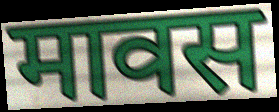
मावस